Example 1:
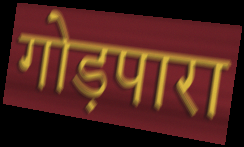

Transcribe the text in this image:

गोड़पारा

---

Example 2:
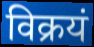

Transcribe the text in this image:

विक्रयं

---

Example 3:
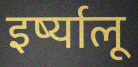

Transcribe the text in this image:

इर्ष्यालू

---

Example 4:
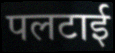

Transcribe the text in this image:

पलटाई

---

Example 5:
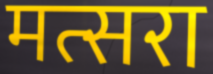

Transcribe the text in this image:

मत्सरा